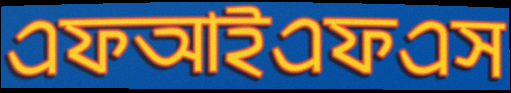
এফআইএফএস